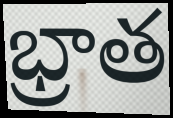
భ్రాత